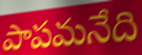
పాపమనేది